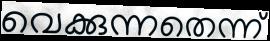
വെക്കുന്നതെന്ന്